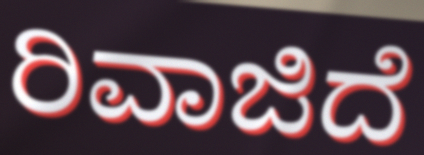
ರಿವಾಜಿದೆ